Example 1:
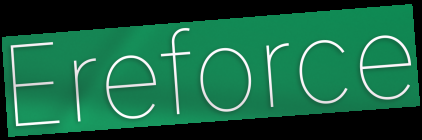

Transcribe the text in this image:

Ereforce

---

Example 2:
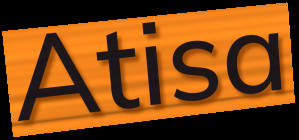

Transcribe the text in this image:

Atisa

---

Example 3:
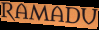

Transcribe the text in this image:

RAMADU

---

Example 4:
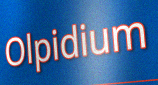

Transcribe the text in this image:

Olpidium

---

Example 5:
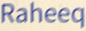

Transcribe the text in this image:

Raheeq